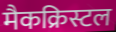
मैकक्रिस्टल